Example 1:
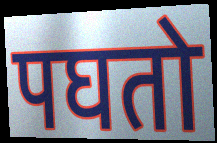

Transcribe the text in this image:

पघतो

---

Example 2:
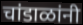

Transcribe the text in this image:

चांडाळांनी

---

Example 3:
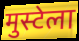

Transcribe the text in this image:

मुस्टेला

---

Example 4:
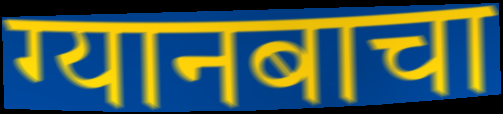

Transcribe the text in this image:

ग्यानबाचा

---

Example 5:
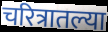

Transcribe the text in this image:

चरित्रातल्या